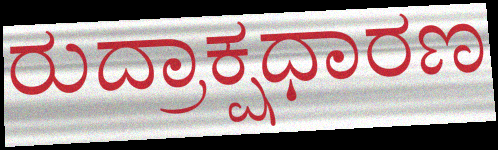
ರುದ್ರಾಕ್ಷಧಾರಣ